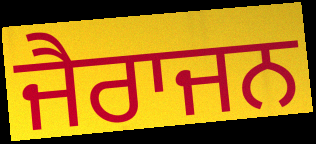
ਜੈਰਾਜਨ